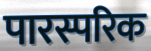
पारस्परिक